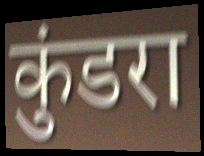
कुंडरा